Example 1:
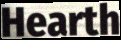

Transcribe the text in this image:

Hearth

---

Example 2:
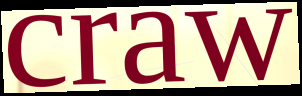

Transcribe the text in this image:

craw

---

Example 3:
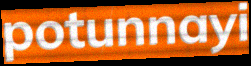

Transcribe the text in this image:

potunnayi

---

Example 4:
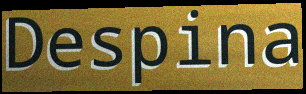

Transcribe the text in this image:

Despina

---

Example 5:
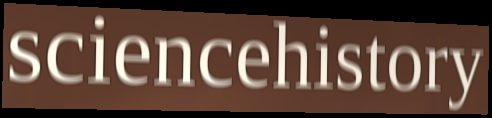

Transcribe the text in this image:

sciencehistory